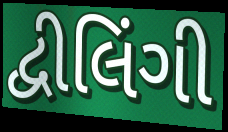
દ્વીલિંગી